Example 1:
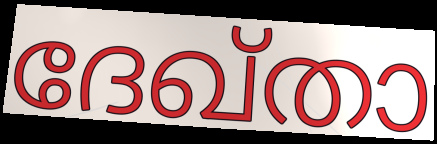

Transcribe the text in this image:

ദേഖ്താ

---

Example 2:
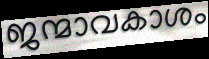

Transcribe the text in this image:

ജന്മാവകാശം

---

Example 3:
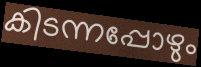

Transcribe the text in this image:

കിടന്നപ്പോഴും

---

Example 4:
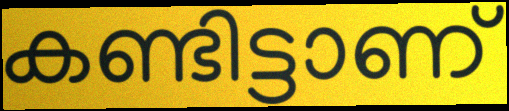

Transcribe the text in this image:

കണ്ടിട്ടാണ്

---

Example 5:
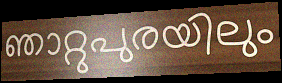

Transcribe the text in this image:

ഞാറ്റുപുരയിലും